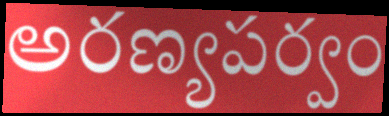
అరణ్యపర్వం